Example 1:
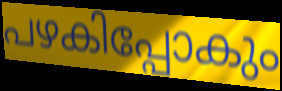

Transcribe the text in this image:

പഴകിപ്പോകും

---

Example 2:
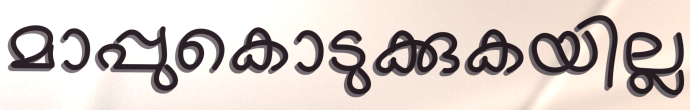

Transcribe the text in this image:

മാപ്പുകൊടുക്കുകയില്ല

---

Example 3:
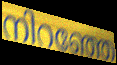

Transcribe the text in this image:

നിറഞ്ഞേ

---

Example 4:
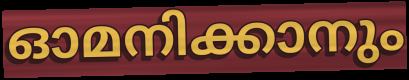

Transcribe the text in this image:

ഓമനിക്കാനും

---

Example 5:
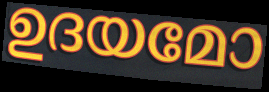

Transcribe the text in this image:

ഉദയമോ